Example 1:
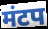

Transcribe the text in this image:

मंटप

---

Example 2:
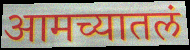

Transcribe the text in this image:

आमच्यातलं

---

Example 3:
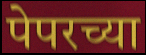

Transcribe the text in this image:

पेपरच्या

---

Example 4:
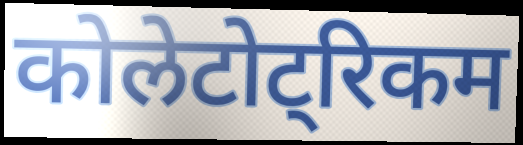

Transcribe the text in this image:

कोलेटोट्रिकम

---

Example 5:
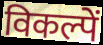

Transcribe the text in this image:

विकल्पें